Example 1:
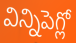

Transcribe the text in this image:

విన్నిపెగ్లో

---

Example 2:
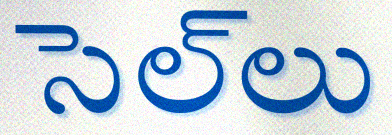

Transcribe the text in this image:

సెల్‌లు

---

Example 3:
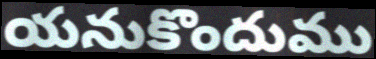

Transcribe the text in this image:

యనుకొందుము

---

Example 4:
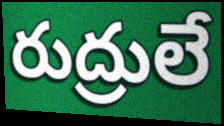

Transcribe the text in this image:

రుద్రులే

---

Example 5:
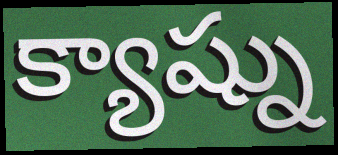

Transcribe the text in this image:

క్యాష్ను